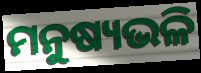
ମନୁଷ୍ୟଭଳି